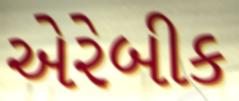
એરેબીક